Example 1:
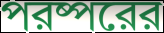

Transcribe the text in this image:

পরষ্পরের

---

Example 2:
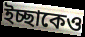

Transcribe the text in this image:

ইচ্ছাকেও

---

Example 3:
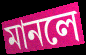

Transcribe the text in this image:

মানলে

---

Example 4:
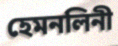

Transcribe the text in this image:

হেমনলিনী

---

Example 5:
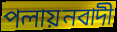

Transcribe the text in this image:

পলায়নবাদী